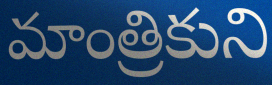
మాంత్రికుని